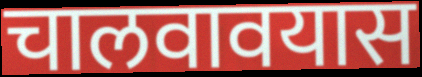
चालवावयास